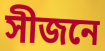
সীজনে